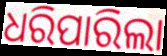
ଧରିପାରିଲା